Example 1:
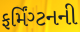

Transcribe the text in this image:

ફર્મિંગ્ટનની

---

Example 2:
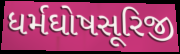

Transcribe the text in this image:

ધર્મઘોષસૂરિજી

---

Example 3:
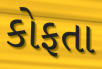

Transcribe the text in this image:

કોફતા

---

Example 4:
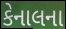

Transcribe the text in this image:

કેનાલના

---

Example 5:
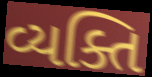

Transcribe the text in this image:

વ્યક્તિ